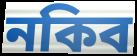
নকিব